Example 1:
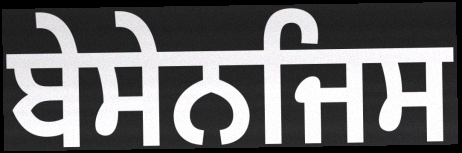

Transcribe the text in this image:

ਬੇਸੇਨਜਿਸ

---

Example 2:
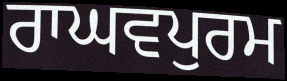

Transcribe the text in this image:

ਰਾਘਵਪੁਰਮ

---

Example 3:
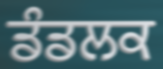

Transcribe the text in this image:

ਡੰਡਲਕ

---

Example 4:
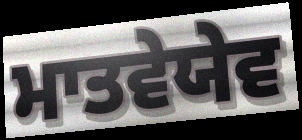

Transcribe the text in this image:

ਮਾਤਵੇਯੇਵ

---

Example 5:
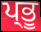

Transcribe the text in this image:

ਪ੍ਭੂ